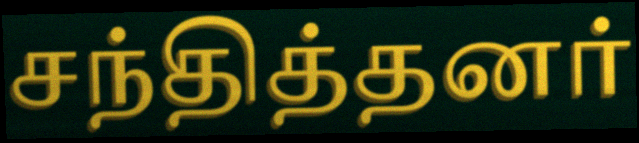
சந்தித்தனர்